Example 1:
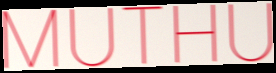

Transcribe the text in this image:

MUTHU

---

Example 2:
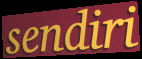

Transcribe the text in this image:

sendiri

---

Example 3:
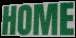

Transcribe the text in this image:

HOME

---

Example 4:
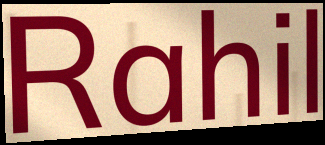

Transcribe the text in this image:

Rahil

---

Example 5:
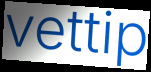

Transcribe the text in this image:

vettip